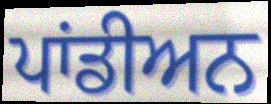
ਪਾਂਡੀਅਨ